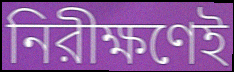
নিরীক্ষণেই